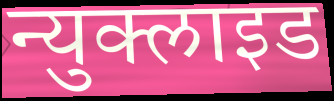
न्युक्लाइड